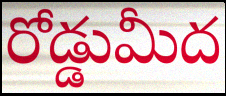
రోడ్డుమీద